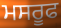
ਮਸਰੂਫ